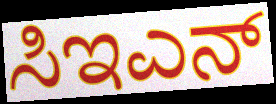
ಸಿಇಎನ್